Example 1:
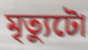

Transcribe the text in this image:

মৃত্যুটো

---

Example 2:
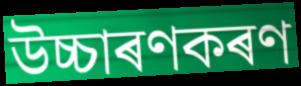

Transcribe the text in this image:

উচ্চাৰণকৰণ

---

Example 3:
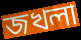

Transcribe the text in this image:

জখলা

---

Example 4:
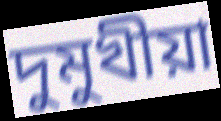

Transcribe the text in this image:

দুমুখীয়া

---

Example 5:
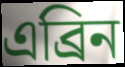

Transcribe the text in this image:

এব্ৰিন